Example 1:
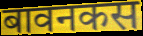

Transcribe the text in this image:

बावनकस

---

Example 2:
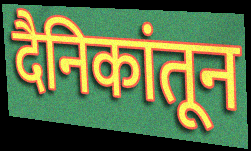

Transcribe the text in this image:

दैनिकांतून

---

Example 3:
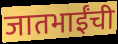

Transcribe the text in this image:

जातभाईंची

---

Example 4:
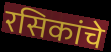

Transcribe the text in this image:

रसिकांचे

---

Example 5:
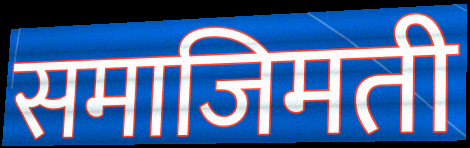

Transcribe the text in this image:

समाजिमती